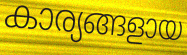
കാര്യങ്ങളായ